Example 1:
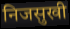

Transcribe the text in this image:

निजसुखी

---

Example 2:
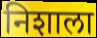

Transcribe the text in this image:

निशाला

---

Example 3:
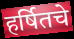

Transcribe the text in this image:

हर्षितचे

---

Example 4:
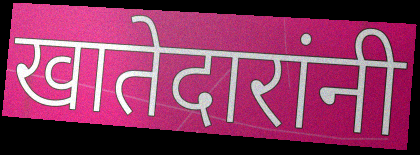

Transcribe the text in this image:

खातेदारांनी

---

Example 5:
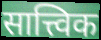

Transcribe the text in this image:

सात्त्विक